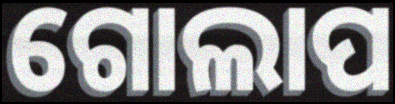
ଗୋଲାପ